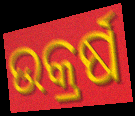
ଉକ୍ରର୍ଷ